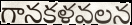
గానకళవలన